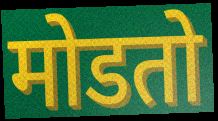
मोडतो